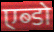
एब्डो